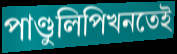
পাণ্ডুলিপিখনতেই